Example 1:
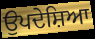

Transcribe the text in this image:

ਉਪਦੇਸ਼ਿਆ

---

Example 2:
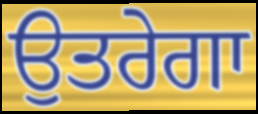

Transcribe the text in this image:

ਉਤਰੇਗਾ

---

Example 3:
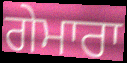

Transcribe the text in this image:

ਗੇਮਾਰਾ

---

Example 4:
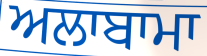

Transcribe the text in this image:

ਅਲਾਬਾਮਾ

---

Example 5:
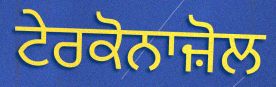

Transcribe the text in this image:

ਟੇਰਕੋਨਾਜ਼ੋਲ